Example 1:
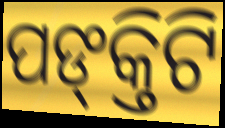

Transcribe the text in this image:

ପଙ୍‌କ୍ତିଟି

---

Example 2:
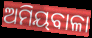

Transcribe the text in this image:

ଅମିୟବାଳା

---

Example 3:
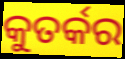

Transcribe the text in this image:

କୁତର୍କର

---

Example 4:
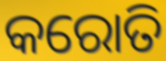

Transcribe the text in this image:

କରୋତି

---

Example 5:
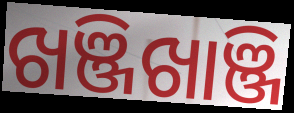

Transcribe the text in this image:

ଖଞ୍ଜିଖାଞ୍ଜି